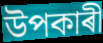
উপকাৰী